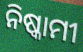
ନିଷ୍କାମୀ